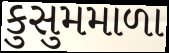
કુસુમમાળા